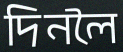
দিনলৈ